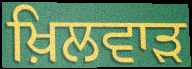
ਖ਼ਿਲਵਾੜ